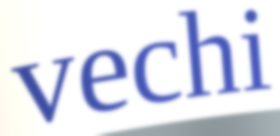
vechi